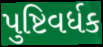
પુષ્ટિવર્ધક